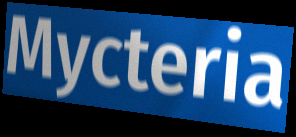
Mycteria